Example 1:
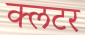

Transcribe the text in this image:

क्लटर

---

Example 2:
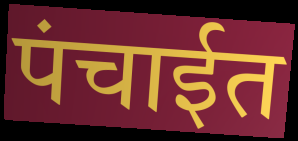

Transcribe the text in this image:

पंचाईत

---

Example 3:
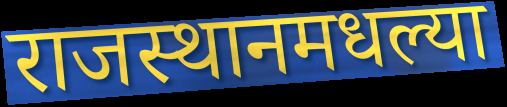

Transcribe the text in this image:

राजस्थानमधल्या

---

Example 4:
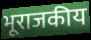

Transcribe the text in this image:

भूराजकीय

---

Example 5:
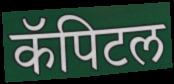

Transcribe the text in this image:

कॅपिटल